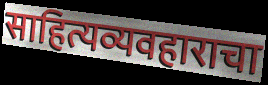
साहित्यव्यवहाराचा